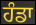
ਹੰਡਾ